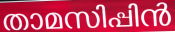
താമസിപ്പിൻ